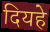
दियहे